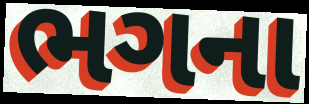
ભગના